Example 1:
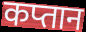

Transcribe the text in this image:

कप्‍तान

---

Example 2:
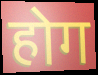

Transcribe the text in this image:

होग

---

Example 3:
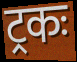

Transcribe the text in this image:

ट्रकः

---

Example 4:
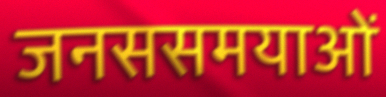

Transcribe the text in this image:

जनससमयाओं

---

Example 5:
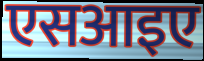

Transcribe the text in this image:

एसआइए